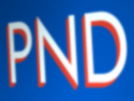
PND